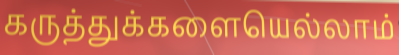
கருத்துக்களையெல்லாம்